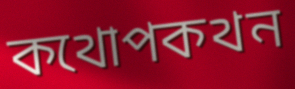
কথোপকথন